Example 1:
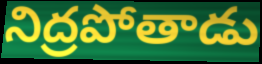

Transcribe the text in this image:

నిద్రపోతాడు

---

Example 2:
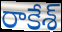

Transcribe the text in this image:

రాకేశ్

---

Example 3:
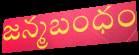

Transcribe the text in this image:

జన్మబంధం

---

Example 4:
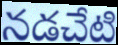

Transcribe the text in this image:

నడచేటి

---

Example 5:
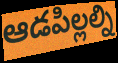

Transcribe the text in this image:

ఆడపిల్లల్ని